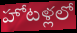
హోటళ్లలో